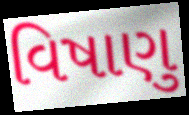
વિષાણુ